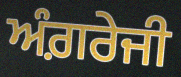
ਅੰਗ਼ਰੇਜੀ